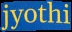
jyothi